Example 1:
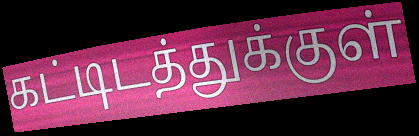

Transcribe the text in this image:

கட்டிடத்துக்குள்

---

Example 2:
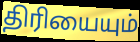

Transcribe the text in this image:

திரியையும்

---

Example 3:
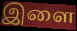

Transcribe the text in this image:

இளை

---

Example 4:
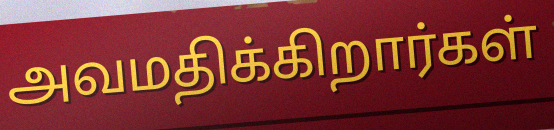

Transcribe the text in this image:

அவமதிக்கிறார்கள்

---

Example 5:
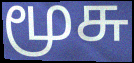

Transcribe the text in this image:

மூசு